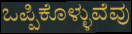
ಒಪ್ಪಿಕೊಳ್ಳುವೆವು